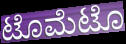
ಟೊಮೆಟೊ